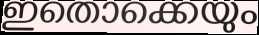
ഇതൊക്കെയും